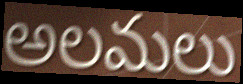
అలమలు